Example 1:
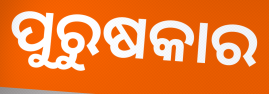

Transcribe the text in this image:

ପୁରୁଷକାର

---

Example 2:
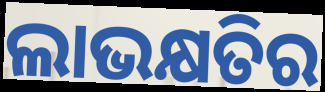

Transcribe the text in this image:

ଲାଭକ୍ଷତିର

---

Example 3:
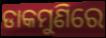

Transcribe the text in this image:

ଡାକମୁଣିରେ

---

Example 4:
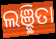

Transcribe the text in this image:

ଲଞ୍ଛିତା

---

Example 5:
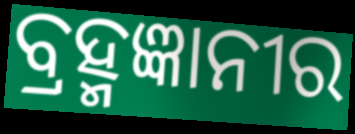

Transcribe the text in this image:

ବ୍ରହ୍ମଜ୍ଞାନୀର